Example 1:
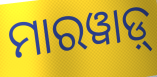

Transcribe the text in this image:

ମାରୱାଡ଼୍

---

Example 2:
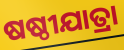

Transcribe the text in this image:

ଷଷ୍ଠୀଯାତ୍ରା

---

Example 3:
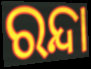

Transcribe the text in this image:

ରନ୍ଦା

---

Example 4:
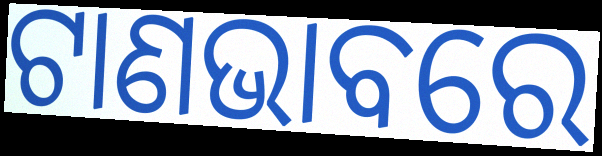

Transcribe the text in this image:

ଟାଣଭାବରେ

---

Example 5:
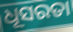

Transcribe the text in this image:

ଧୂସରତା